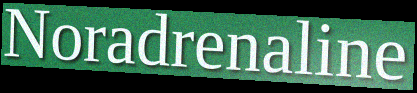
Noradrenaline